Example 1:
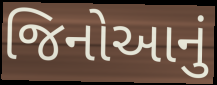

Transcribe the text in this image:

જિનોઆનું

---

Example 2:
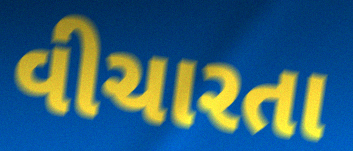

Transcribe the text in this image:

વીચારતા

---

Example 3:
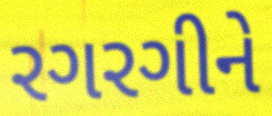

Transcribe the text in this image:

રગરગીને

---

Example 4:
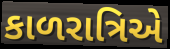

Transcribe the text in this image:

કાળરાત્રિએ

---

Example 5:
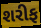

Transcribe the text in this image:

શરીફ